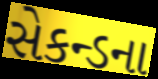
સેકન્ડના